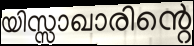
യിസ്സാഖാരിന്റെ